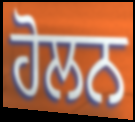
ਹੋਲਨ